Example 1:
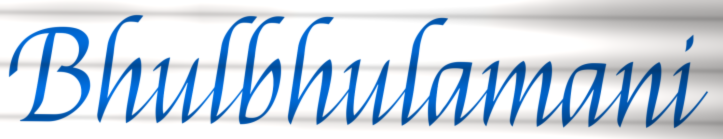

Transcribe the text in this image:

Bhulbhulamani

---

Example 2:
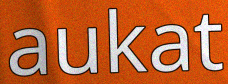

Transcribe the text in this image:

aukat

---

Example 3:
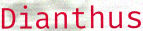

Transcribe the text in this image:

Dianthus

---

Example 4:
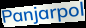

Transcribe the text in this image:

Panjarpol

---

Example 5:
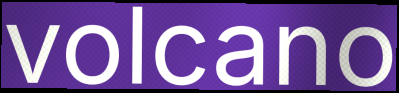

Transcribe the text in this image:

volcano